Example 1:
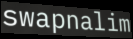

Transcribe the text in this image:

swapnalim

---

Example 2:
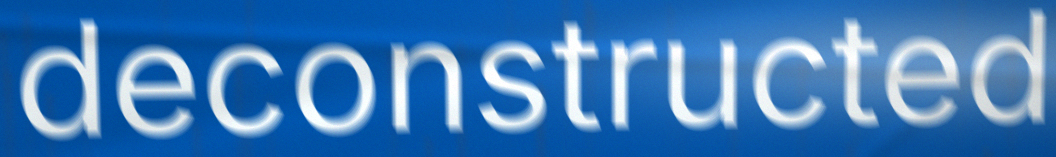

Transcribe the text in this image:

deconstructed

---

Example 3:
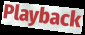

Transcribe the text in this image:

Playback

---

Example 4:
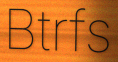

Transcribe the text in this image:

Btrfs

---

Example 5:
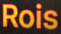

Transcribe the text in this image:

Rois